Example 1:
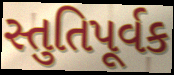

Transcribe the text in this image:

સ્તુતિપૂર્વક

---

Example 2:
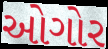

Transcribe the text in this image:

ઓગોર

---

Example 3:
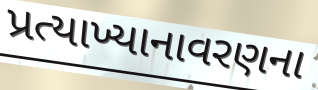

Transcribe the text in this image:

પ્રત્યાખ્યાનાવરણના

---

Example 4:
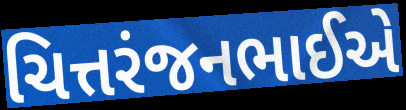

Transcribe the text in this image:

ચિત્તરંજનભાઈએ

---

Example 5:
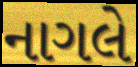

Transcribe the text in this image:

નાગલે